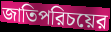
জাতিপরিচয়ের